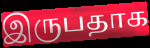
இருபதாக